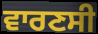
ਵਾਰਣਸੀ